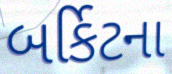
બર્કિટના